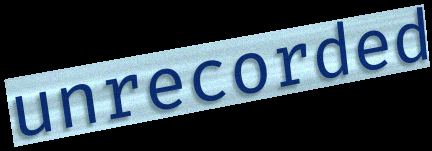
unrecorded